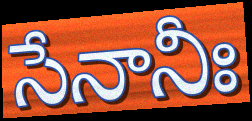
సేనానీః